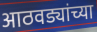
आठवड्यांच्या